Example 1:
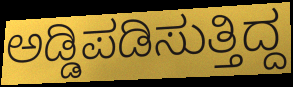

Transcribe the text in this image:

ಅಡ್ಡಿಪಡಿಸುತ್ತಿದ್ದ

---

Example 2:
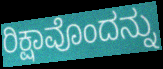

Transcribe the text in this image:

ರಿಕ್ಷಾವೊಂದನ್ನು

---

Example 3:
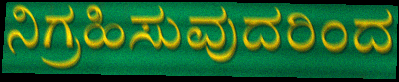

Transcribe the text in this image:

ನಿಗ್ರಹಿಸುವುದರಿಂದ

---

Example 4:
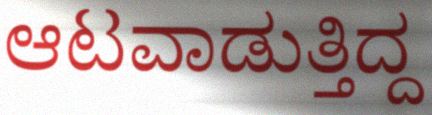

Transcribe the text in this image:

ಆಟವಾಡುತ್ತಿದ್ದ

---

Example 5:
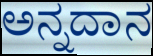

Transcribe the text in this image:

ಅನ್ನದಾನ